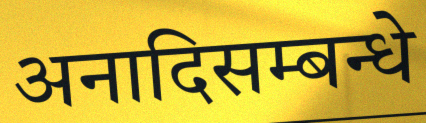
अनादिसम्बन्धे